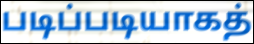
படிப்படியாகத்